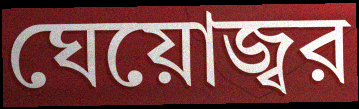
ঘেয়োজ্বর